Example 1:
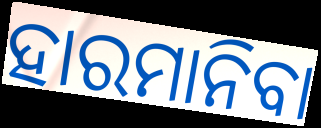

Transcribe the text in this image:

ହାରମାନିବା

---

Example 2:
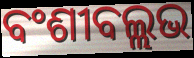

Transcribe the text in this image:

ବଂଶୀବଲ୍ଲଭ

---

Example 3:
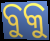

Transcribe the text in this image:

ବୁକୁ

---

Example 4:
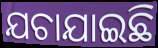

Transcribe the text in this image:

ଯଚାଯାଇଛି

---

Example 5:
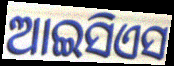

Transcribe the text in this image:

ଆଇସିଏସ